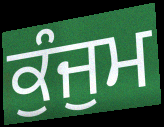
ਕੁੰਜੁਮ